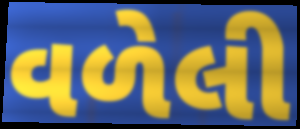
વળેલી